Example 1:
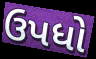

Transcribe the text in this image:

ઉપધો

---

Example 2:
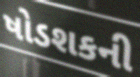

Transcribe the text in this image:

ષોડશકની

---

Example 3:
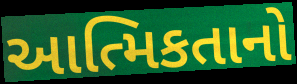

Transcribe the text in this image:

આત્મિકતાનો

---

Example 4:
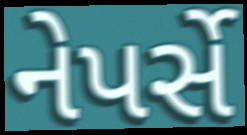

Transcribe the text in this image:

નેપર્સે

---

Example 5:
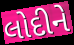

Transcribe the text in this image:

લોદીને